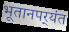
भूतानपर्यंत